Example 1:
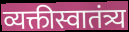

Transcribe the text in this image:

व्यक्तीस्वातंत्र्य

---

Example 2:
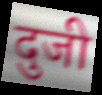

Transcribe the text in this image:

दुजी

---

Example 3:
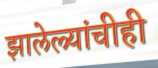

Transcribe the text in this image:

झालेल्यांचीही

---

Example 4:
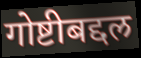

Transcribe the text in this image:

गोष्टीबद्दल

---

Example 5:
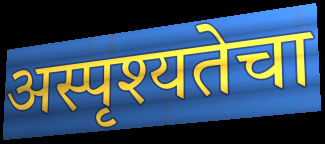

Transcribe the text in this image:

अस्पृश्यतेचा